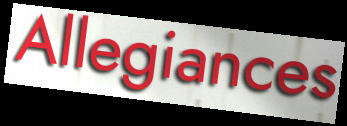
Allegiances